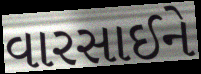
વારસાઈને